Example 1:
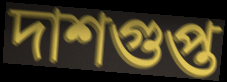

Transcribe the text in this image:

দাশগুপ্ত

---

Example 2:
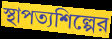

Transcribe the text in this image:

স্থাপত্যশিল্পের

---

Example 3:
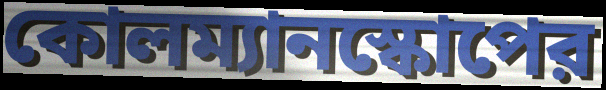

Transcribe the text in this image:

কোলম্যানস্কোপের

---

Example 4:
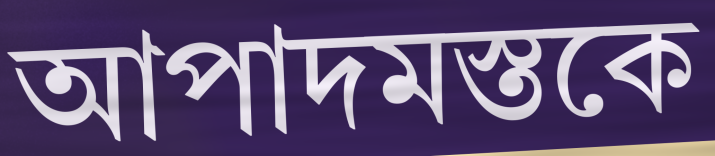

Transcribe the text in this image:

আপাদমস্তকে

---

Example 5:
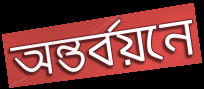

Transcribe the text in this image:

অন্তর্বয়নে